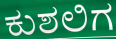
ಕುಶಲಿಗ